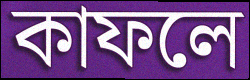
কাফলে